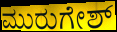
ಮುರುಗೇಶ್